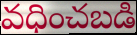
వధించబడి